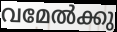
വമേൽക്കു